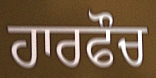
ਹਾਰਫੌਚ